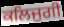
ਕਲਿਜੁਗੀ